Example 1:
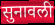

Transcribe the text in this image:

सुनावली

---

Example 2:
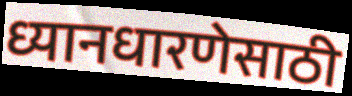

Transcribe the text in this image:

ध्यानधारणेसाठी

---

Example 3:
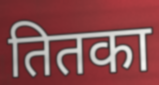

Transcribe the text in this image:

तितका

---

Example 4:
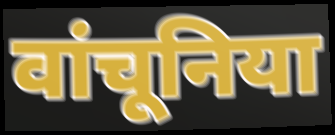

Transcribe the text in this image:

वांचूनिया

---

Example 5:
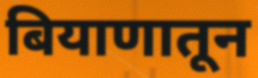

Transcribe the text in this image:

बियाणातून